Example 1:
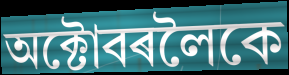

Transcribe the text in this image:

অক্টোবৰলৈকে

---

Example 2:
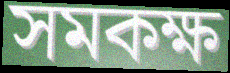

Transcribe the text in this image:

সমকক্ষ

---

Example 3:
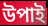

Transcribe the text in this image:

উপাই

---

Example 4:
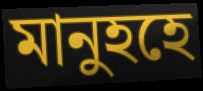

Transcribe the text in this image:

মানুহহে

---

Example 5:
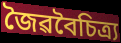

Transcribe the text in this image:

জৈৱবৈচিত্ৰ্য